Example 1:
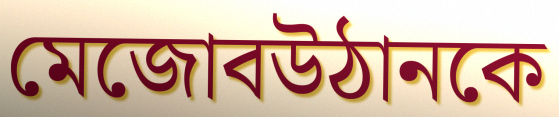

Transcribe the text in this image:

মেজোবউঠানকে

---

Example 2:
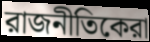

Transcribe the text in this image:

রাজনীতিকেরা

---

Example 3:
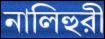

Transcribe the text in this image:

নালিহুরী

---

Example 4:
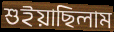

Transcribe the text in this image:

শুইয়াছিলাম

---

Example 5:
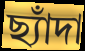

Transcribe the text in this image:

ছ্যাঁদা